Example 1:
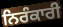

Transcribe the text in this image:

ਨਿਰੰਕਾਰੀ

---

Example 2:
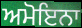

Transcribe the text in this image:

ਅਮੋਇਨਾ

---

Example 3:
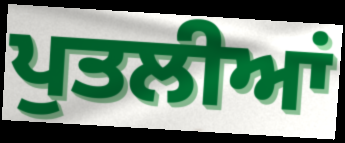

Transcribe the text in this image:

ਪੁਤਲੀਆਂ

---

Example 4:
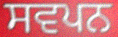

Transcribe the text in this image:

ਸਵਪਨ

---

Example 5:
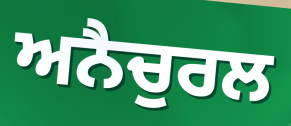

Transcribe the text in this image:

ਅਨੈਚੁਰਲ